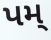
પમ્